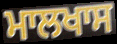
ਮਾਲਖਾਸ